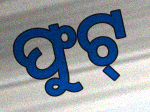
ଫୁଟ୍